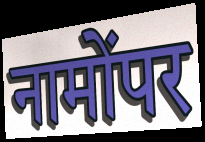
नामोंपर